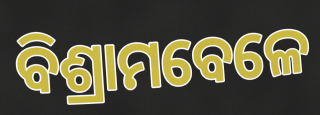
ବିଶ୍ରାମବେଳେ